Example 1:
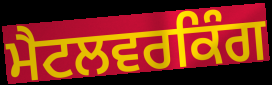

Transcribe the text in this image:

ਮੈਟਲਵਰਕਿੰਗ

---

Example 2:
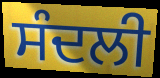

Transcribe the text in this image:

ਸੰਦਲੀ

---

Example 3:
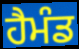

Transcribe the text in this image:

ਹੈਮੰਡ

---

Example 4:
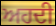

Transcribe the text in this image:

ਅਹਦੀ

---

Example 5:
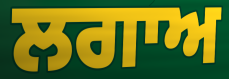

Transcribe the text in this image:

ਲਗਾਅ